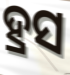
ହ୍ରସ